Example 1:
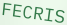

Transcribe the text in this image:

FECRIS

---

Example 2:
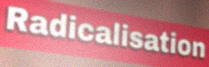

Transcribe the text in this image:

Radicalisation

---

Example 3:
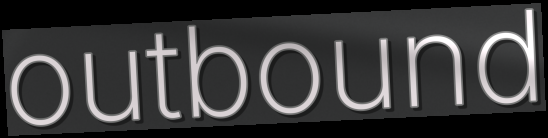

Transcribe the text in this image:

outbound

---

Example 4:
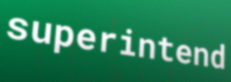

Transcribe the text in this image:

superintend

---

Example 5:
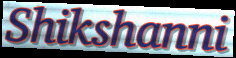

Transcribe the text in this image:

Shikshanni